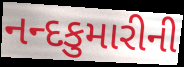
નન્દકુમારીની